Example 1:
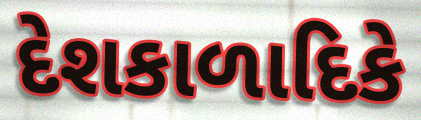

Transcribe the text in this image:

દેશકાળાદિકે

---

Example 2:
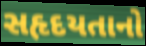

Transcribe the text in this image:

સહૃદયતાનો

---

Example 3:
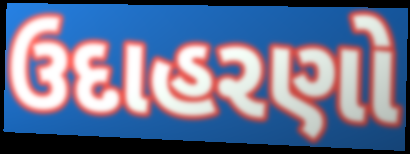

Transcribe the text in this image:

ઉદાહરણો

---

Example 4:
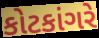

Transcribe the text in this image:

કોટકાંગરે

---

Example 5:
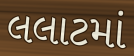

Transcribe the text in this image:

લલાટમાં